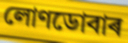
লোণডোবাৰ